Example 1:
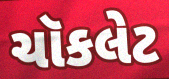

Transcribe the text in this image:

ચૉકલેટ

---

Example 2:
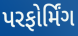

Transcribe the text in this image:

પરફોર્મિંગ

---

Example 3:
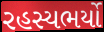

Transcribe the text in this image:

રહસ્યભર્યો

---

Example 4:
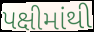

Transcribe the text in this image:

પક્ષીમાંથી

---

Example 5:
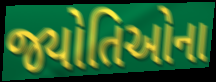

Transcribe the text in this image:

જ્યોતિઓના